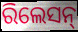
ରିଲେସନ୍